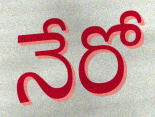
నేరో